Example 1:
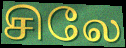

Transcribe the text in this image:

சிலே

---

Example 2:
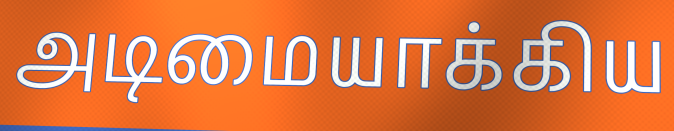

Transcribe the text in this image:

அடிமையாக்கிய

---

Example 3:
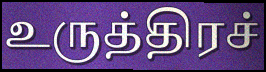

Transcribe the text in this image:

உருத்திரச்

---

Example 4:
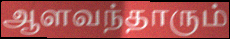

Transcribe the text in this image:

ஆளவந்தாரும்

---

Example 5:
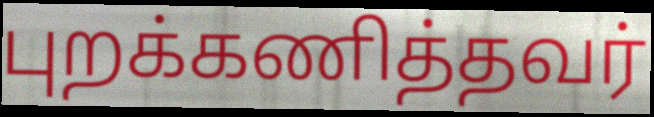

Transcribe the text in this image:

புறக்கணித்தவர்